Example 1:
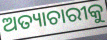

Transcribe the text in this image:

ଅତ୍ୟାଚାରୀକୁ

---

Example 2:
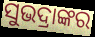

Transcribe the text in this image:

ସୁଭଦ୍ରାଙ୍କର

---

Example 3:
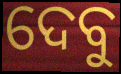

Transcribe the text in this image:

ଦେବୁ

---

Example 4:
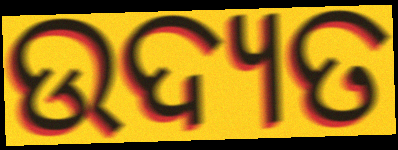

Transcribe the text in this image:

ଉଦ୍ୟତ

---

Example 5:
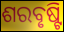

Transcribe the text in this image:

ଶରବୃଷ୍ଟି